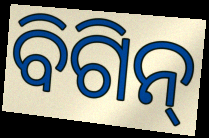
ବିଗିନ୍